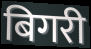
बिगरी